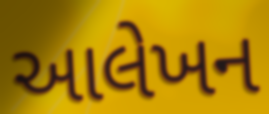
આલેખન